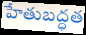
హేతుబద్ధత